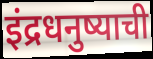
इंद्रधनुष्याची